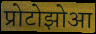
प्रोटोझोआ